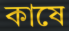
কাষে